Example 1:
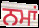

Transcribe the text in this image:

ਨਮਾਂ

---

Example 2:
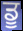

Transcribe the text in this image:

ਡੂ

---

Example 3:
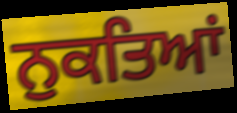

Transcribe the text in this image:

ਨੁਕਤਿਆਂ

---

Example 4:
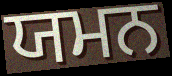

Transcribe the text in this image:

ਯਮਨ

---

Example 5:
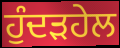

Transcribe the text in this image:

ਹੁੰਦੜਹੇਲ